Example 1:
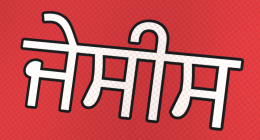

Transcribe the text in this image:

ਜੇਸੀਸ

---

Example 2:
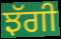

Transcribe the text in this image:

ਝੱਗੀ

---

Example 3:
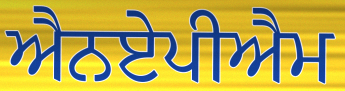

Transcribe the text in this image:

ਐਨਏਪੀਐਮ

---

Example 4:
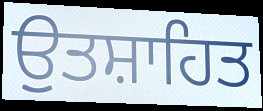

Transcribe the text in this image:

ਉੁਤਸ਼ਾਹਿਤ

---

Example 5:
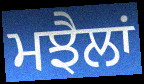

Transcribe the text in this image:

ਮਝੈਲਾਂ